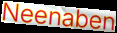
Neenaben